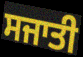
ਸਜਾਤੀ